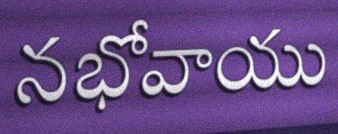
నభోవాయు